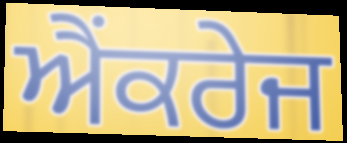
ਐਂਕਰੇਜ